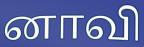
னாவி